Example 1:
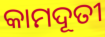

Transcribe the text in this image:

କାମଦୂତୀ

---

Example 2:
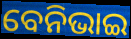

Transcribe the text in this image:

ବେନିଭାଇ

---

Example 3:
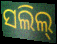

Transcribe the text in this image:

ସଲିଲ୍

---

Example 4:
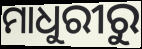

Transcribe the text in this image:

ମାଧୁରୀରୁ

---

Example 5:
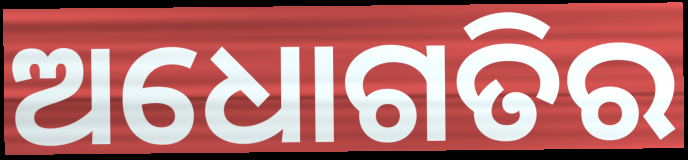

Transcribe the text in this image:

ଅଧୋଗତିର